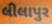
લીલાપુર